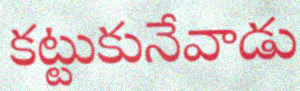
కట్టుకునేవాడు